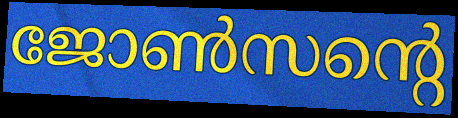
ജോൺസന്റെ